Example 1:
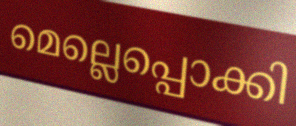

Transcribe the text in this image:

മെല്ലെപ്പൊക്കി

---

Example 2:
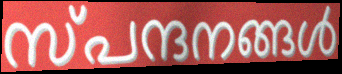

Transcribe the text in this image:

സ്പന്ദനങ്ങൾ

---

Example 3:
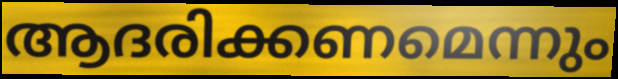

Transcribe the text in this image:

ആദരിക്കണമെന്നും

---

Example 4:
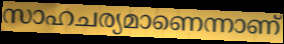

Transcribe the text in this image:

സാഹചര്യമാണെന്നാണ്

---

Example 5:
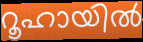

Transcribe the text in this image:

റൂഹായിൽ